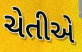
ચેતીએ